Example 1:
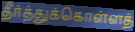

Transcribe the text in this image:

தீர்த்துக்கொள்ளத்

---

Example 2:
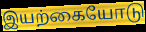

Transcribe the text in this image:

இயற்கையோடு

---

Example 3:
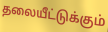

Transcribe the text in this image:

தலையீட்டுக்கும்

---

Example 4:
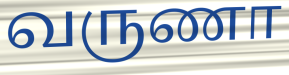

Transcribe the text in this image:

வருணா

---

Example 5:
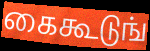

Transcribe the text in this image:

கைகூடுங்